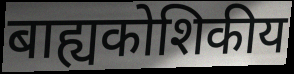
बाह्यकोशिकीय